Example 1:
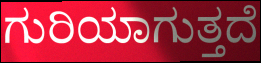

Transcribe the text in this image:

ಗುರಿಯಾಗುತ್ತದೆ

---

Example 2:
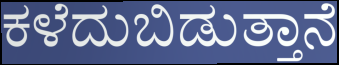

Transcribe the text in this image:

ಕಳೆದುಬಿಡುತ್ತಾನೆ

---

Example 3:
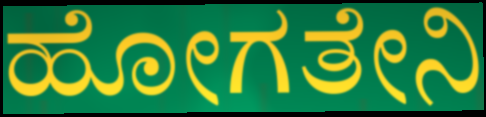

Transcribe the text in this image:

ಹೋಗತೇನಿ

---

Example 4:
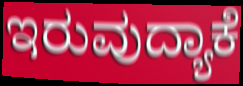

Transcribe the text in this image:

ಇರುವುದ್ಯಾಕೆ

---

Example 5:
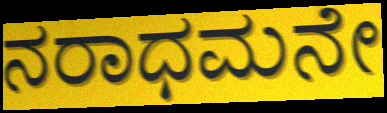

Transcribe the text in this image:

ನರಾಧಮನೇ